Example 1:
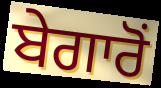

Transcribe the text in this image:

ਬੇਗਾਰੋਂ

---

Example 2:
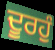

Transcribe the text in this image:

ਦੂਰਹੁੰ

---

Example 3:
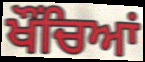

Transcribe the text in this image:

ਖੌਂਚਿਆਂ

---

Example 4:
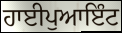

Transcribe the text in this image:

ਹਾਈਪੁਆਇੰਟ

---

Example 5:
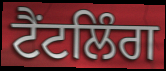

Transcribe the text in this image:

ਟੈਂਟਲਿੰਗ